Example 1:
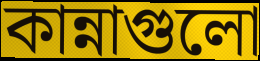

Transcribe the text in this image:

কান্নাগুলো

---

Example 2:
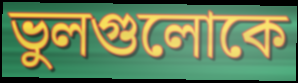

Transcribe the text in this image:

ভুলগুলোকে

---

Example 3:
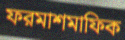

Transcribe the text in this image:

ফরমাশমাফিক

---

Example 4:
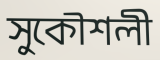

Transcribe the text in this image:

সুকৌশলী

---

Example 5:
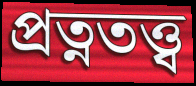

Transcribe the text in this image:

প্রত্নতত্ত্ব